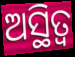
ଅସ୍ଥିତ୍ଵ